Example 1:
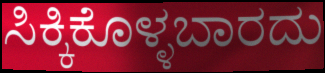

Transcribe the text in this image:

ಸಿಕ್ಕಿಕೊಳ್ಳಬಾರದು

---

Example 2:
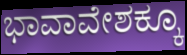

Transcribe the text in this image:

ಭಾವಾವೇಶಕ್ಕೂ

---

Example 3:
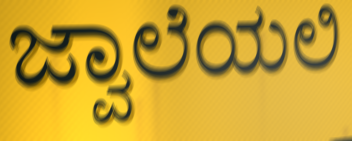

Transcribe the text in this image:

ಜ್ವಾಲೆಯಲಿ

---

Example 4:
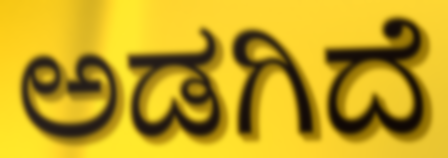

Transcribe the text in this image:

ಅಡಗಿದೆ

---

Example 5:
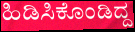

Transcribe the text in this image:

ಹಿಡಿಸಿಕೊಂಡಿದ್ದ